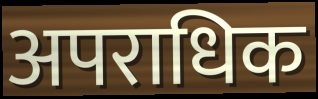
अपराधिक